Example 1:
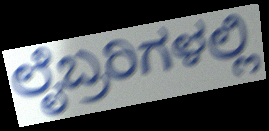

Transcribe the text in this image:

ಲೈಬ್ರರಿಗಳಲ್ಲಿ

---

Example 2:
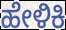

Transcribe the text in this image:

ಹೇಳಿಕಿ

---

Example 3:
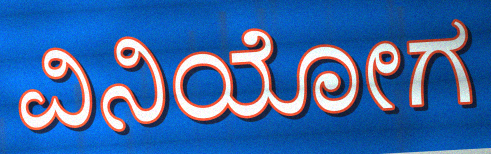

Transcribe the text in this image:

ವಿನಿಯೋಗ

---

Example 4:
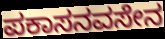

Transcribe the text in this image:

ಪಕಾಸನವಸೇನ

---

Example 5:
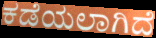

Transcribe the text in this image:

ಕಡೆಯಲಾಗಿದೆ